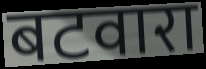
बटवारा